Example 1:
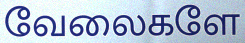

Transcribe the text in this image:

வேலைகளே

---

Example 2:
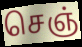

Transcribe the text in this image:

செஞ்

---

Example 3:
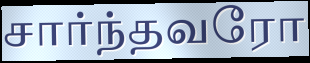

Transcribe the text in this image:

சார்ந்தவரோ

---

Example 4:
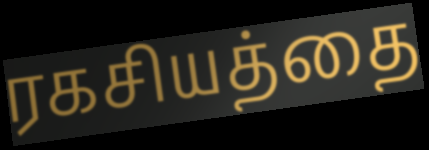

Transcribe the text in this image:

ரகசியத்தை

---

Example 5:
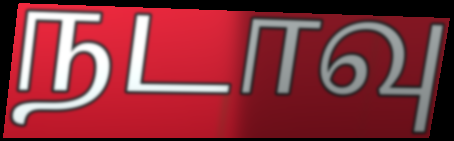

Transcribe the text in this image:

நடாவு